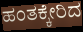
ಹಂತಕ್ಕೇರಿದ